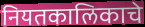
नियतकालिकाचे